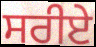
ਸਰੀਏ